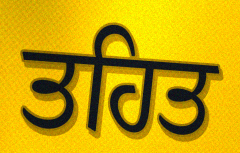
ਤਹਿਤ